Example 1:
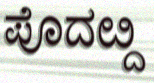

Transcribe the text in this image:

ಪೊದೞ್ದ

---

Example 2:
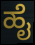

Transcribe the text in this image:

ಹೈ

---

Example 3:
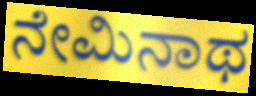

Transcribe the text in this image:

ನೇಮಿನಾಥ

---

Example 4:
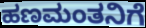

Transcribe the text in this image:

ಹಣಮಂತನಿಗೆ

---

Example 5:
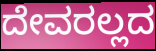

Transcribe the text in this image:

ದೇವರಲ್ಲದ